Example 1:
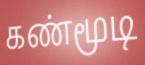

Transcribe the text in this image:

கண்மூடி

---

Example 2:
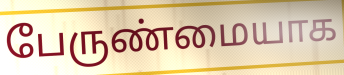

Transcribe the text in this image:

பேருண்மையாக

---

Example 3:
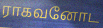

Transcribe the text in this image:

ராகவனோட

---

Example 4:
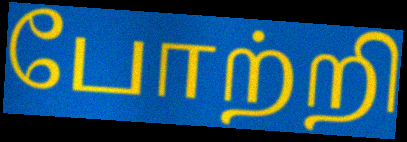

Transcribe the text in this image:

போற்றி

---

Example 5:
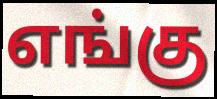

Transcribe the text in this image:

எங்கு